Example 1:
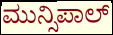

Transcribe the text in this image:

ಮುನ್ಸಿಪಾಲ್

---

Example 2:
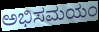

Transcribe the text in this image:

ಅಭಿಸಮಯಂ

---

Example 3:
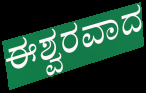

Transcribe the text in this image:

ಈಶ್ವರವಾದ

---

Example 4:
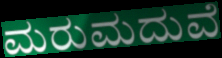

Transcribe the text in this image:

ಮರುಮದುವೆ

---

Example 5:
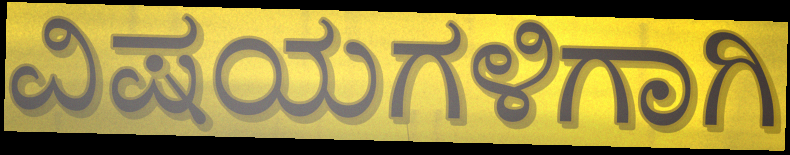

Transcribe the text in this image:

ವಿಷಯಗಳಿಗಾಗಿ